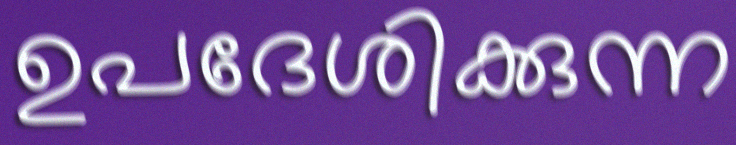
ഉപദേശിക്കുന്ന